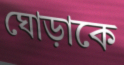
ঘোড়াকে